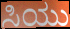
ಸಿಯು